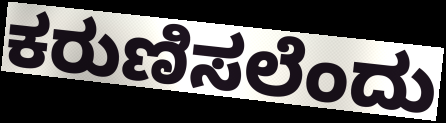
ಕರುಣಿಸಲೆಂದು